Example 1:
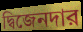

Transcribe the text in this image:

দ্বিজেনদার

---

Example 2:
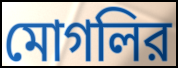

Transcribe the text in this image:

মোগলির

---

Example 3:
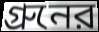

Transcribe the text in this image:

গ্রুনের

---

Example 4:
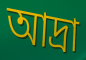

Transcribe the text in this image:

আদ্রা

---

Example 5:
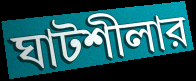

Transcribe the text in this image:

ঘাটশীলার